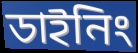
ডাইনিং